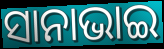
ସାନାଭାଇ